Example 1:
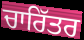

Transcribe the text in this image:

ਚਾਰਿੱਤਰ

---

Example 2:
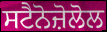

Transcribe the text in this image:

ਸਟੈਨੋਜ਼ੋਲੋਲ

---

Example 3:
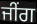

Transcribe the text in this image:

ਜੀਂਗ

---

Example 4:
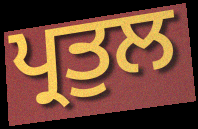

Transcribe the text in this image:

ਪ੍ਰਤੁਲ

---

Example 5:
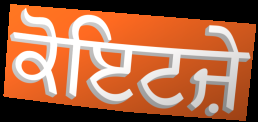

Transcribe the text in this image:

ਕੋਇਟਜ਼ੇ